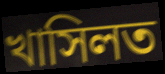
খাসিলত